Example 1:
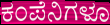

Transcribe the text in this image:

ಕಂಪೆನಿಗಳೂ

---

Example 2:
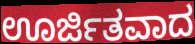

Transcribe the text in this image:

ಊರ್ಜಿತವಾದ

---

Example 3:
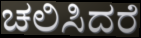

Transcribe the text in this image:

ಚಲಿಸಿದರೆ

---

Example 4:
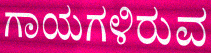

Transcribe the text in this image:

ಗಾಯಗಳಿರುವ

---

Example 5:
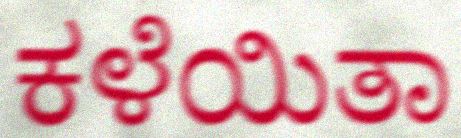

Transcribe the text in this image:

ಕಳೆಯಿತಾ